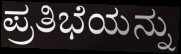
ಪ್ರತಿಭೆಯನ್ನು